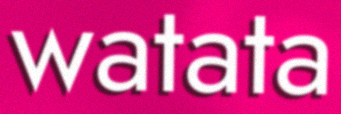
watata